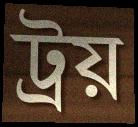
ট্রয়